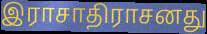
இராசாதிராசனது